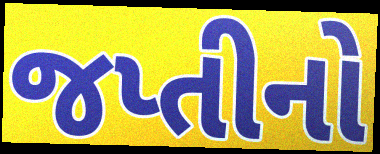
જપ્તીનો